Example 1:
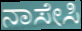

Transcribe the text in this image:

ನಾಸೇಸಿ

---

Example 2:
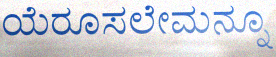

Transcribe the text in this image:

ಯೆರೂಸಲೇಮನ್ನೂ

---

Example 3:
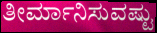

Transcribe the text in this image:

ತೀರ್ಮಾನಿಸುವಷ್ಟು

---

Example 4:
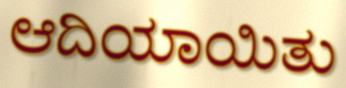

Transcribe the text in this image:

ಆದಿಯಾಯಿತು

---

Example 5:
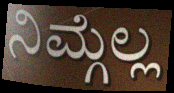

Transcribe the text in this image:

ನಿಮ್ಗೆಲ್ಲ